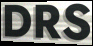
DRS